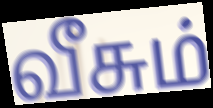
வீசும்